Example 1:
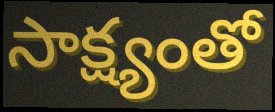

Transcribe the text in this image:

సాక్ష్యంతో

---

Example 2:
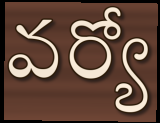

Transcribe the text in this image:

వర్యో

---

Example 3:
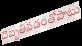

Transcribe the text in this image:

దెబ్బతినడంతోపాటు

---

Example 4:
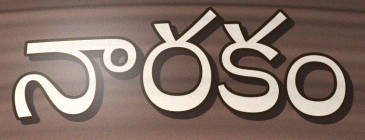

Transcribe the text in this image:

నారకం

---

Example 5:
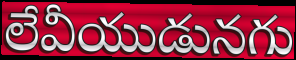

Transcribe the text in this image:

లేవీయుడునగు